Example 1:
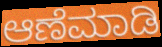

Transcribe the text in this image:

ಆಣೆಮಾಡಿ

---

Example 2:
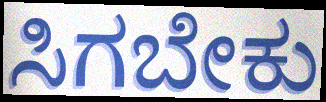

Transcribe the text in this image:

ಸಿಗಬೇಕು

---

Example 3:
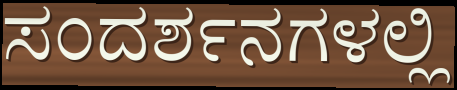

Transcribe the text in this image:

ಸಂದರ್ಶನಗಳಲ್ಲಿ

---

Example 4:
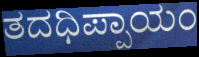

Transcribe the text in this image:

ತದಧಿಪ್ಪಾಯಂ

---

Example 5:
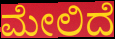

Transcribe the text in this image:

ಮೇಲಿದೆ